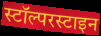
स्टॉल्परस्टाइन